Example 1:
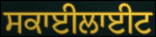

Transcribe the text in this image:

ਸਕਾਈਲਾਈਟ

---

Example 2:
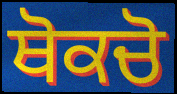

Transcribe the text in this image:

ਥੋਕਚੋ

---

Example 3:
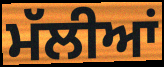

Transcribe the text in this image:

ਮੱਲੀਆਂ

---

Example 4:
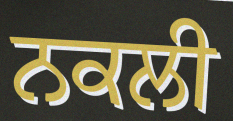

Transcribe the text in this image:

ਨਕਲੀ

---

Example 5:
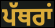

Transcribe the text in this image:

ਪੱਥਰਾਂ